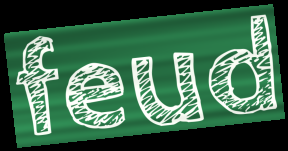
feud